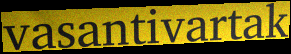
vasantivartak